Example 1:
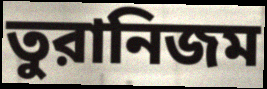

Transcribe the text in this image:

তুরানিজম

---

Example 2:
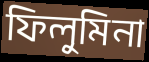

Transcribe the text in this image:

ফিলুমিনা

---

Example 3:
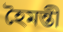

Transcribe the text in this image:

হৈমন্তী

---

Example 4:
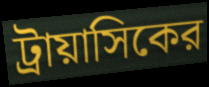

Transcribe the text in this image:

ট্রায়াসিকের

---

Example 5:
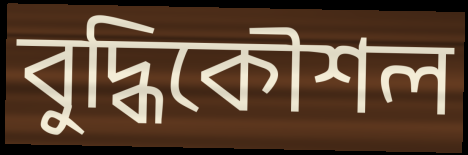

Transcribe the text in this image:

বুদ্ধিকৌশল